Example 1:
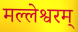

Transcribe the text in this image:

मल्लेश्वरम्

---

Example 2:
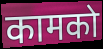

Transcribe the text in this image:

कामको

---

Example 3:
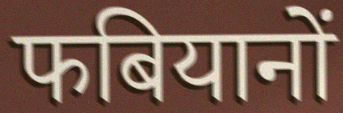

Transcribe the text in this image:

फबियानों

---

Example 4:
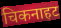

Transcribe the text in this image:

चिकनाहट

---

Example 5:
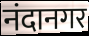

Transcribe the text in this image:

नंदानगर